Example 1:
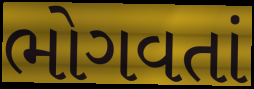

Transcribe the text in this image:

ભોગવતાં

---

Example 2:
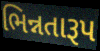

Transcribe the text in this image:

ભિન્નતારૂપ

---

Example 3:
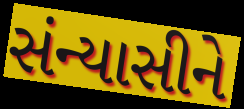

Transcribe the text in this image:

સંન્યાસીને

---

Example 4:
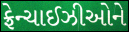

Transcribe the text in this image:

ફ્રેન્ચાઈઝીઓને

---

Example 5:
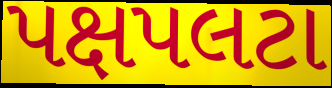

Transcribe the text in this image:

પક્ષપલટા